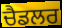
ਚੈਡਲਰ